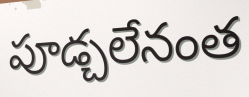
పూడ్చలేనంత